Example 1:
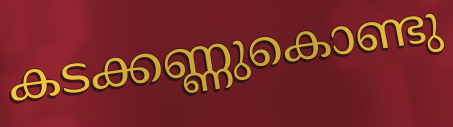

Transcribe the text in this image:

കടക്കണ്ണുകൊണ്ടു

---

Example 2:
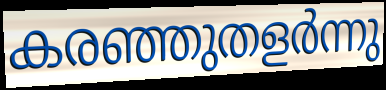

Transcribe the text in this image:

കരഞ്ഞുതളർന്നു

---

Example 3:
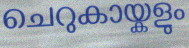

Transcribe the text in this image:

ചെറുകായ്കളും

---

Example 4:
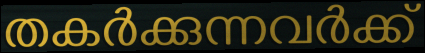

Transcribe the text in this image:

തകർക്കുന്നവർക്ക്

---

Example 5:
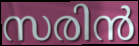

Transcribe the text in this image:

സരിൻ